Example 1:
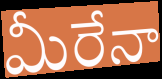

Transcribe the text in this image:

మీరేనా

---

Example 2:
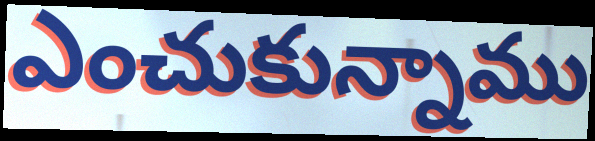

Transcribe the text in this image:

ఎంచుకున్నాము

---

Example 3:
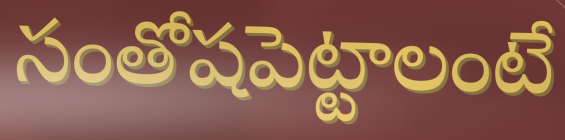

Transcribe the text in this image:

సంతోషపెట్టాలంటే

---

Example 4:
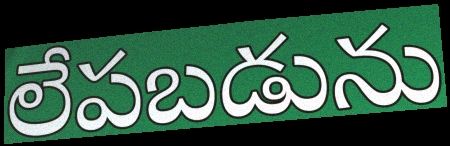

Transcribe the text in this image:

లేపబడును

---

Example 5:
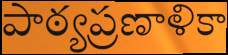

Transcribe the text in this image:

పాఠ్యప్రణాళికా